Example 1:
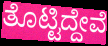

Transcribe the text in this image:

ತೊಟ್ಟಿದ್ದೇವೆ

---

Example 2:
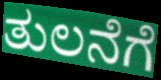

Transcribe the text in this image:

ತುಲನೆಗೆ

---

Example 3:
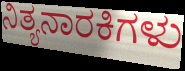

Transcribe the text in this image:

ನಿತ್ಯನಾರಕಿಗಳು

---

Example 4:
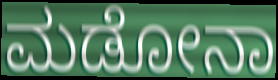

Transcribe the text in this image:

ಮಡೋನಾ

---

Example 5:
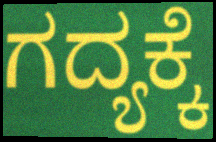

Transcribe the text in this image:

ಗದ್ಯಕ್ಕೆ